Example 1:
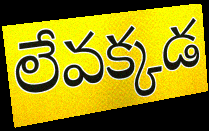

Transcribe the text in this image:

లేవక్కడ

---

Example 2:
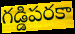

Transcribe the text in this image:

గడ్డిపరకా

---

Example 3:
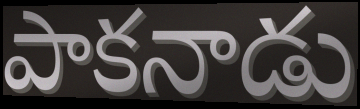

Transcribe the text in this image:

పాకనాడు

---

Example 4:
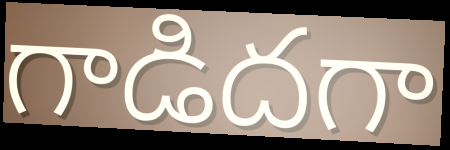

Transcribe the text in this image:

గాడిదగా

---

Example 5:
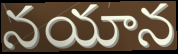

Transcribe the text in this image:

నయాన